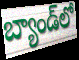
బ్యాండ్‌లో